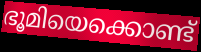
ഭൂമിയെക്കൊണ്ട്